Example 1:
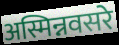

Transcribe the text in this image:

अस्मिन्नवसरे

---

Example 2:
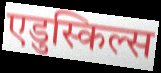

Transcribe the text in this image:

एडुस्किल्स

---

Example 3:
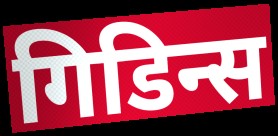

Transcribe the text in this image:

गिडिन्स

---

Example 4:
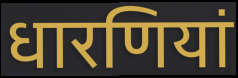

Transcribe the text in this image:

धारणियां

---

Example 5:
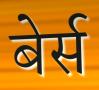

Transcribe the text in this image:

बेर्स